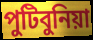
পুটিবুনিয়া